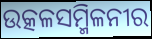
ଉତ୍କଳସମ୍ମିଳନୀର